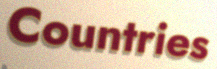
Countries